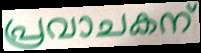
പ്രവാചകന്